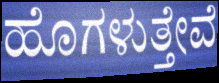
ಹೊಗಳುತ್ತೇವೆ